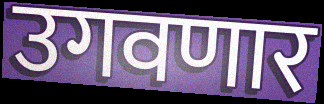
उगवणार